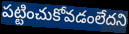
పట్టించుకోవడంలేదని